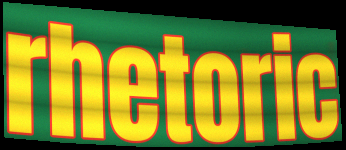
rhetoric